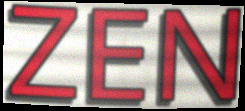
ZEN